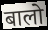
बालो